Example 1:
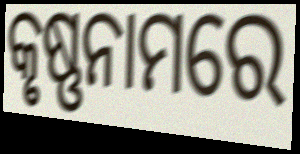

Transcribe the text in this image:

କୃଷ୍ଣନାମରେ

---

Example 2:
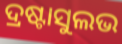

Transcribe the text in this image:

ଦ୍ରଷ୍ଟାସୁଲଭ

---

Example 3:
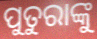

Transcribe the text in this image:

ପୁତୁରାଙ୍କୁ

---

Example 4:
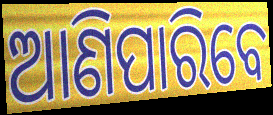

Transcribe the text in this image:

ଆଣିପାରିବେ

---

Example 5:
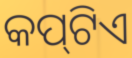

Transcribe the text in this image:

କପ୍‌ଟିଏ